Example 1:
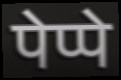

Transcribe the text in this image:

पेप्पे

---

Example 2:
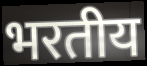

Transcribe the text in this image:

भरतीय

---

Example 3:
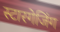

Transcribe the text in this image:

स्टारगेजिंग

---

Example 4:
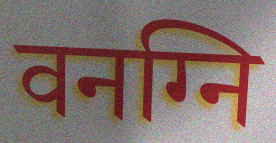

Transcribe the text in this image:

वनग्नि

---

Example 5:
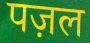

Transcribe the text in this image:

पज़ल